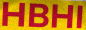
HBHI